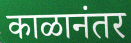
काळानंतर